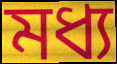
মধ্য